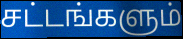
சட்டங்களும்